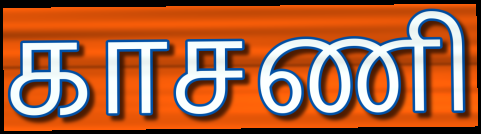
காசணி